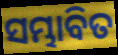
ସମ୍ଭାବିତ